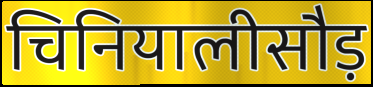
चिनियालीसौड़